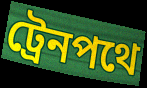
ট্রেনপথে